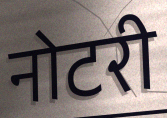
नोटरी